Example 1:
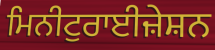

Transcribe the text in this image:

ਮਿਨੀਟੁਰਾਈਜ਼ੇਸ਼ਨ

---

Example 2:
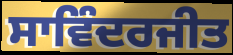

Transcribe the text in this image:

ਸਾਵਿੰਦਰਜੀਤ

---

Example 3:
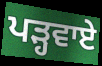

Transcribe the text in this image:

ਪੜ੍ਹਵਾਏ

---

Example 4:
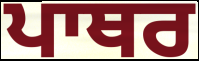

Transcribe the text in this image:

ਪਾਥਰ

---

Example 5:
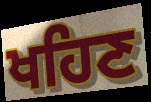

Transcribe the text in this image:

ਖਹਿਣ